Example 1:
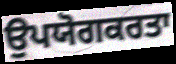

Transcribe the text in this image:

ਉਪਯੋਗਕਰਤਾ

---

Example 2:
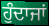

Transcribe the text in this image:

ਹੁੰਦਾਜਾਂ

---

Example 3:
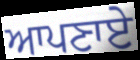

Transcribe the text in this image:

ਆਪਣਾਏ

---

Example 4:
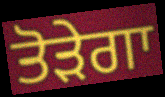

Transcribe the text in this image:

ਤੋੜੇਗਾ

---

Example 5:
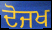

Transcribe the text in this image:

ਦੋਜਖ